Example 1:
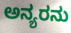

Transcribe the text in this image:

ಅನ್ಯರನು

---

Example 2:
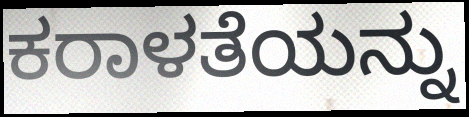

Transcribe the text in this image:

ಕರಾಳತೆಯನ್ನು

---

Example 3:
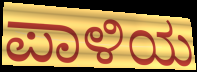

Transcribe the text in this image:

ಪಾಳಿಯ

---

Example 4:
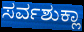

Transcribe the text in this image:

ಸರ್ವಶುಕ್ಲಾ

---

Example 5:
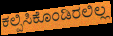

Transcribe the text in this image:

ಕಲ್ಪಿಸಿಕೊಂಡಿರಲಿಲ್ಲ